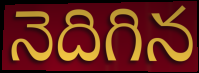
నెదిగిన